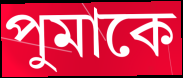
পুমাকে